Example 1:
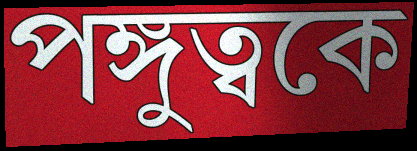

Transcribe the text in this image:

পঙ্গুত্বকে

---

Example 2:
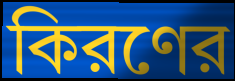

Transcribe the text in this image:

কিরণের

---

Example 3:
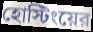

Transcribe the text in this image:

হোস্টিংয়ের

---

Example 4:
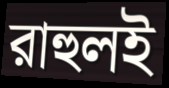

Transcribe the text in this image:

রাহুলই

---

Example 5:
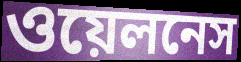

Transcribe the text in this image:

ওয়েলনেস